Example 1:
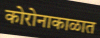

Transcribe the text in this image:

कोरोनाकाळात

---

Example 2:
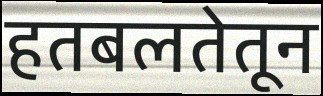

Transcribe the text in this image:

हतबलतेतून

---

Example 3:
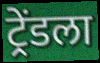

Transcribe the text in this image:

ट्रेंडला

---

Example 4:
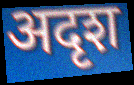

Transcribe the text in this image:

अदृश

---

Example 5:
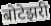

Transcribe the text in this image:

बोटेझरी